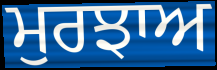
ਮੁਰਝਾਅ